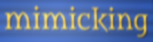
mimicking